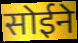
सोईने